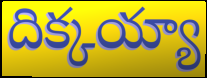
దిక్కయ్యా